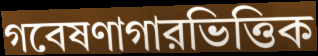
গবেষণাগারভিত্তিক